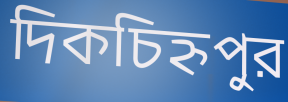
দিকচিহ্নপুর